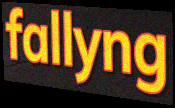
fallyng